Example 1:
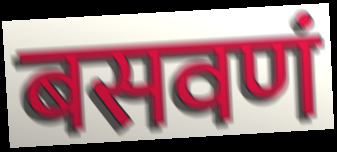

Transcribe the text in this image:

बसवणं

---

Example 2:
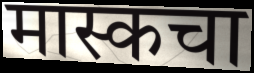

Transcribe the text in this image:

मास्कचा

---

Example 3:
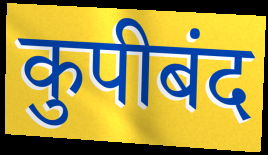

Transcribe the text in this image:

कुपीबंद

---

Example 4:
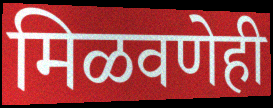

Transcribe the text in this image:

मिळवणेही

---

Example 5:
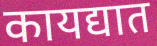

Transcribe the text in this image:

कायद्यात